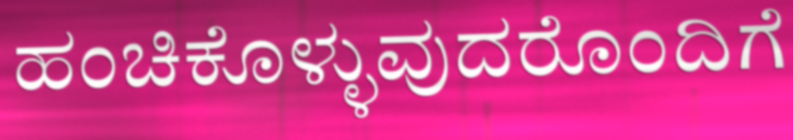
ಹಂಚಿಕೊಳ್ಳುವುದರೊಂದಿಗೆ